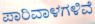
ಪಾರಿವಾಳಗಳಿವೆ